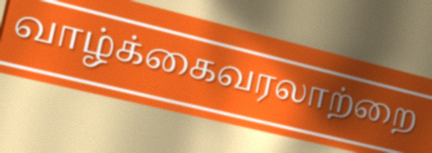
வாழ்க்கைவரலாற்றை